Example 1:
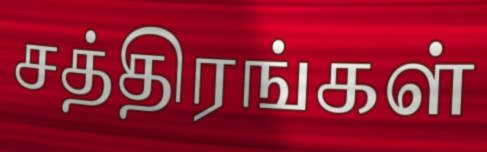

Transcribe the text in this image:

சத்திரங்கள்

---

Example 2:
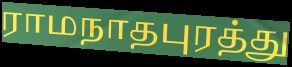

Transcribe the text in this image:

ராமநாதபுரத்து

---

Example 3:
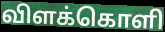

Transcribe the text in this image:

விளக்கொளி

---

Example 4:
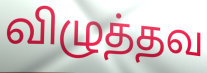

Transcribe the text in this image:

விழுத்தவ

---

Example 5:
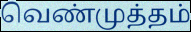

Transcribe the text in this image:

வெண்முத்தம்